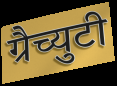
ग्रैच्युटी